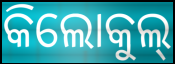
କିଲୋକୁଲ୍